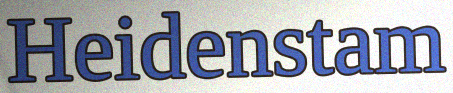
Heidenstam